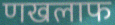
णखलाफ